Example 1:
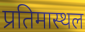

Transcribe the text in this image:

प्रतिमास्थल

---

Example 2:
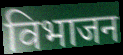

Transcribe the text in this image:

विभाजन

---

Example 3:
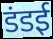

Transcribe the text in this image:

डंडई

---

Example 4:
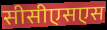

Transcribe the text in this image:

सीसीएसएस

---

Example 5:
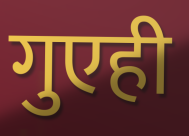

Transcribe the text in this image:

गुएही